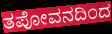
ತಪೋವನದಿಂದ